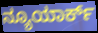
ನ್ಯೂಯಾರ್ಕ್